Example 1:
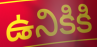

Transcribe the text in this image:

ఉనికికి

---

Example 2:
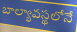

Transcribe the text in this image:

బాల్యావస్థలోనే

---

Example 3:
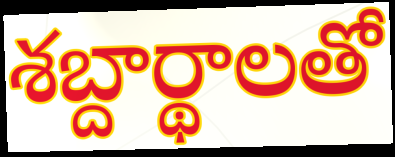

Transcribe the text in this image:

శబ్దార్థాలతో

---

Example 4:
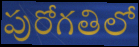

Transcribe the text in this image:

పురోగతిలో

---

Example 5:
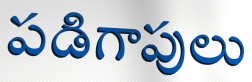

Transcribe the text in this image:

పడిగాపులు